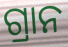
ଗ୍ରାନ